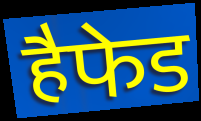
हैफेड